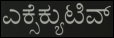
ಎಕ್ಸೆಕ್ಯುಟಿವ್